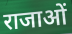
राजाओं